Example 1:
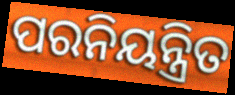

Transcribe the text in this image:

ପରନିୟନ୍ତ୍ରିତ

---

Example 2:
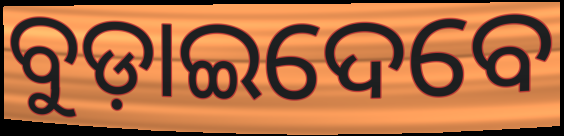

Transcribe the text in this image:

ବୁଡ଼ାଇଦେବେ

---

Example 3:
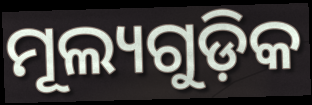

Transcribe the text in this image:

ମୂଲ୍ୟଗୁଡ଼ିକ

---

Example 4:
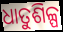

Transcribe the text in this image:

ଧାତୁଶିଳ୍ପ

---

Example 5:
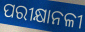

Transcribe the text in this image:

ପରୀକ୍ଷାନଳୀ